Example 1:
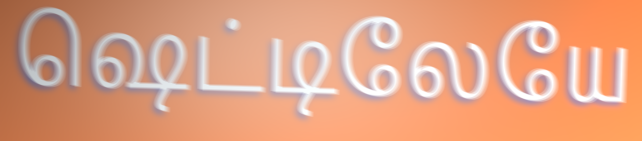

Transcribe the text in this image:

ஷெட்டிலேயே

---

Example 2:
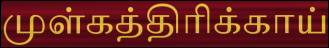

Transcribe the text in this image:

முள்கத்திரிக்காய்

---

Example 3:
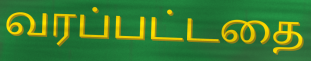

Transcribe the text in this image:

வரப்பட்டதை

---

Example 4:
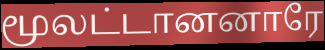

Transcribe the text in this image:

மூலட்டானனாரே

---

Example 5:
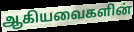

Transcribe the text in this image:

ஆகியவைகளின்